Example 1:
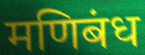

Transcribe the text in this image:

मणिबंध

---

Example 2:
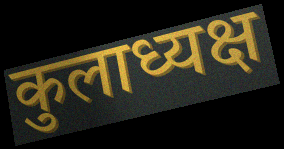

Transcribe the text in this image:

कुलाध्यक्ष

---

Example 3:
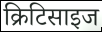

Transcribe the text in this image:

क्रिटिसाइज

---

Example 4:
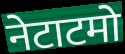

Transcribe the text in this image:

नेटाटमो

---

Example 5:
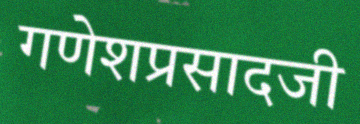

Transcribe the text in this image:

गणेशप्रसादजी